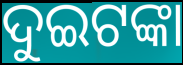
ଦୁଇଟଙ୍କା